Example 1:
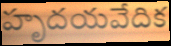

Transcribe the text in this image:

హృదయవేదిక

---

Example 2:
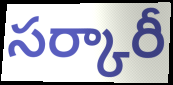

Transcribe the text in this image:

సర్కారీ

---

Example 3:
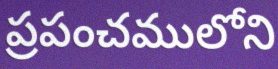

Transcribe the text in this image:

ప్రపంచములోని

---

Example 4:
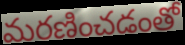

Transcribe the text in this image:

మరణించడంతో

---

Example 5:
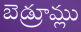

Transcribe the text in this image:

బెడ్రూమ్లు